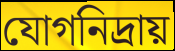
যোগনিদ্রায়